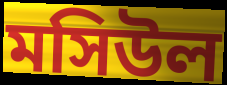
মসিউল